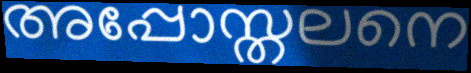
അപ്പോസ്തലനെ